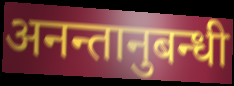
अनन्तानुबन्धी